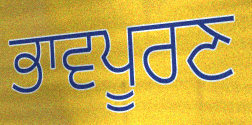
ਭਾਵਪੂਰਣ